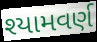
શ્યામવર્ણ